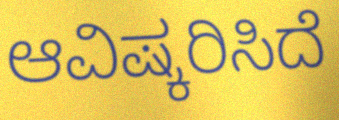
ಆವಿಷ್ಕರಿಸಿದೆ